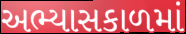
અભ્યાસકાળમાં